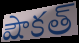
షౌకత్